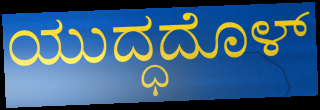
ಯುದ್ಧದೊಳ್